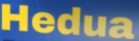
Hedua